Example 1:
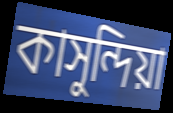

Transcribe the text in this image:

কাসুন্দিয়া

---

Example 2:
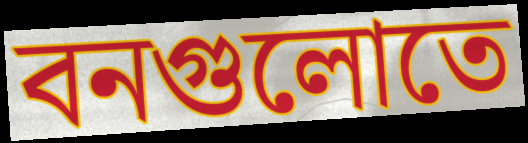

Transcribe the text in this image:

বনগুলোতে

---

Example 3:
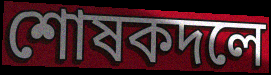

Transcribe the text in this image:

শোষকদলে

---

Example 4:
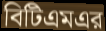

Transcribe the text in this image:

বিটিএমএর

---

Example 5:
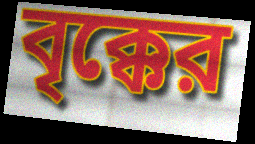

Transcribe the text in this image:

বৃক্কের